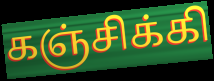
கஞ்சிக்கி